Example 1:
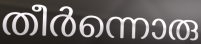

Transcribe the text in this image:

തീർന്നൊരു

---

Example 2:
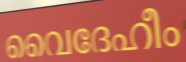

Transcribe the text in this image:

വൈദേഹീം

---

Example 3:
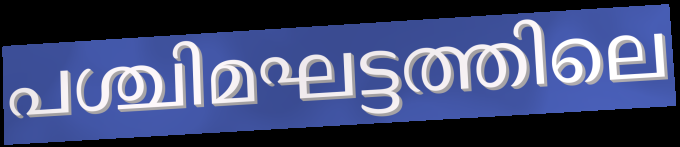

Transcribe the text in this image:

പശ്ചിമഘട്ടത്തിലെ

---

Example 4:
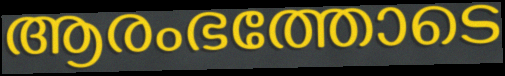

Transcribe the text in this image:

ആരംഭത്തോടെ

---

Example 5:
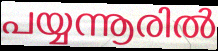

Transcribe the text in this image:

പയ്യന്നൂരിൽ